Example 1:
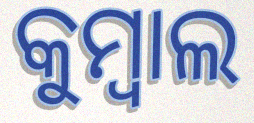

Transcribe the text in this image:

କୁମ୍ବାଲ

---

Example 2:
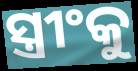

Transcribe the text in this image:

ସ୍ତ୍ରୀଂକୁ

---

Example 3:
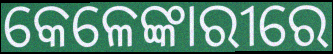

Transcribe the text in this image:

କେଳେଙ୍କାରୀରେ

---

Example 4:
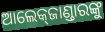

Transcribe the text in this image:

ଆଲେକ୍‌ଜାଣ୍ଡାରଙ୍କୁ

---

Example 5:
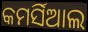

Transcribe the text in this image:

କମର୍ସିଆଲ